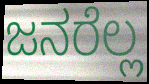
ಜನರೆಲ್ಲ